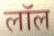
लॉल